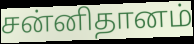
சன்னிதானம்